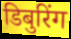
डिबुरिंग